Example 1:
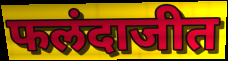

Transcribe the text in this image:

फलंदाजीत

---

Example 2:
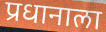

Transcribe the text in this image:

प्रधानाला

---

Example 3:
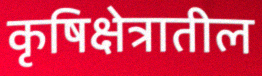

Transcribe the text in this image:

कृषिक्षेत्रातील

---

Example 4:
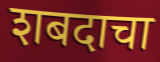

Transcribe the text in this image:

शबदाचा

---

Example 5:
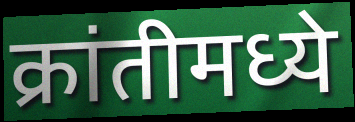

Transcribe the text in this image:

क्रांतीमध्ये